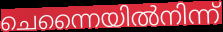
ചെന്നൈയിൽനിന്ന്